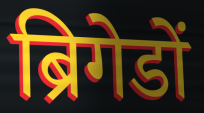
ब्रिगेडों